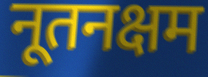
नूतनक्षम